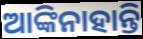
ଆଙ୍କିନାହାନ୍ତି